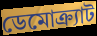
ডেমোক্র্যাট